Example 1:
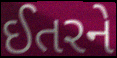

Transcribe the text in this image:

ઈતરને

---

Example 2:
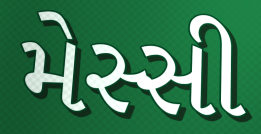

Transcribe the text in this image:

મેસ્સી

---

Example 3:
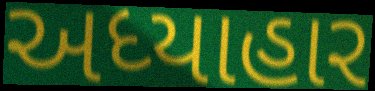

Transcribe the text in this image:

અધ્યાહાર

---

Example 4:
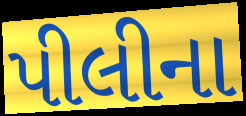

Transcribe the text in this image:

પીલીના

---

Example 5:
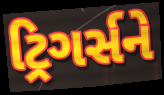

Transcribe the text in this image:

ટ્રિગર્સને